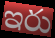
ఇరు